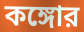
কঙ্গোর